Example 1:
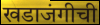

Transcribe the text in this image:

खडाजंगीची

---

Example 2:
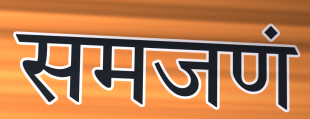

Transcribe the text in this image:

समजणं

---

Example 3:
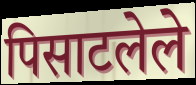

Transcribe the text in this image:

पिसाटलेले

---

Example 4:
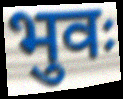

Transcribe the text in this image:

भुवः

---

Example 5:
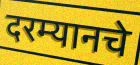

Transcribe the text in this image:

दरम्यानचे